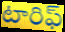
టారిఫ్